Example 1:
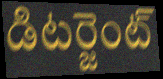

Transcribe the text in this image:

డిటర్జెంట్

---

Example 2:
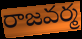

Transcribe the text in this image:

రాజవర్మ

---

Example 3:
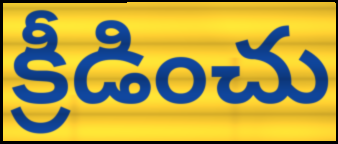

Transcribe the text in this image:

క్రీడించు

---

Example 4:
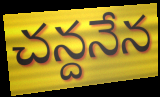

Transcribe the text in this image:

చన్దనేన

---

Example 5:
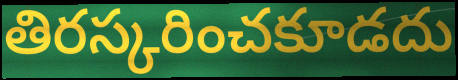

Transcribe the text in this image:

తిరస్కరించకూడదు